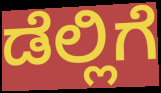
ಡೆಲ್ಲಿಗೆ